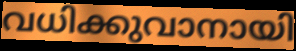
വധിക്കുവാനായി